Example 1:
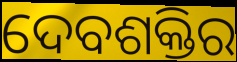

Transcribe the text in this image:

ଦେବଶକ୍ତିର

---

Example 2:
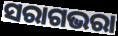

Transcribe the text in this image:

ସରାଗଭରା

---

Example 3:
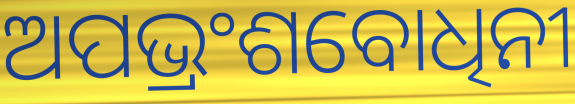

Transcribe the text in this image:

ଅପଭ୍ରଂଶବୋଧିନୀ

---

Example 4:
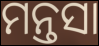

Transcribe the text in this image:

ମନ୍ତସା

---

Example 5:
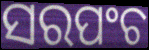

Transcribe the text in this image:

ସରପଂଚ